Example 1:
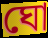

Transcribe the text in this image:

ঘো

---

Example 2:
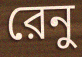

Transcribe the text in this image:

রেনু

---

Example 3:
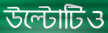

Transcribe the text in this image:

উল্টোটিও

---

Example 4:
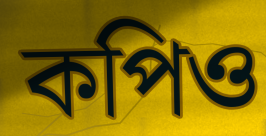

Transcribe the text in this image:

কপিও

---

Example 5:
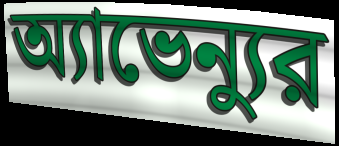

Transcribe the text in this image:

অ্যাভেন্যুর